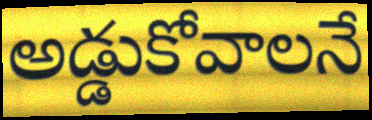
అడ్డుకోవాలనే